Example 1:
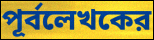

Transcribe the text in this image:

পূর্বলেখকের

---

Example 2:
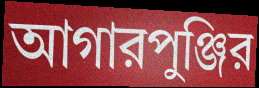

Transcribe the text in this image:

আগারপুঞ্জির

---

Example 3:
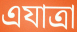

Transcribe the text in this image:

এযাত্রা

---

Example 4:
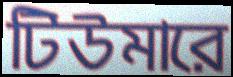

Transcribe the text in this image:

টিউমারে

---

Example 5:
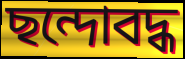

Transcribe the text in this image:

ছন্দোবদ্ধ